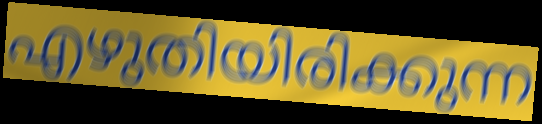
എഴുതിയിരിക്കുന്ന